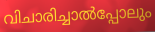
വിചാരിച്ചാൽപ്പോലും